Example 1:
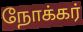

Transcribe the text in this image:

நோக்கர்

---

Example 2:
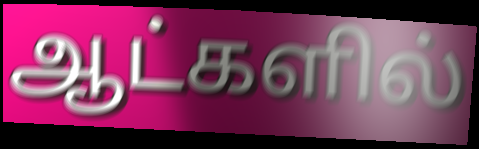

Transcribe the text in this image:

ஆட்களில்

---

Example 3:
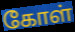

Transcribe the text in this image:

கோள்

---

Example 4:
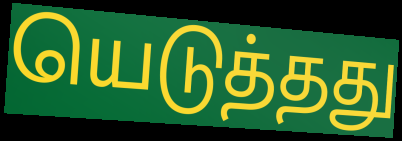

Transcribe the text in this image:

யெடுத்தது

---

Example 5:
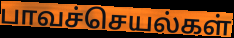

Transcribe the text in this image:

பாவச்செயல்கள்